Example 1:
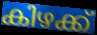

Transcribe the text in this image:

കിഴക്ക്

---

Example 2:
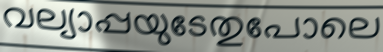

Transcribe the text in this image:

വല്യാപ്പയുടേതുപോലെ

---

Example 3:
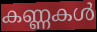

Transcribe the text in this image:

കണ്ണകൾ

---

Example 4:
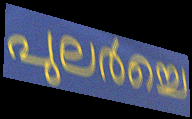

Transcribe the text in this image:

പുലർച്ചെ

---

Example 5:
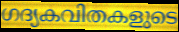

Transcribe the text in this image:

ഗദ്യകവിതകളുടെ